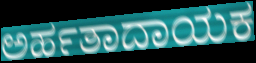
ಅರ್ಹತಾದಾಯಕ